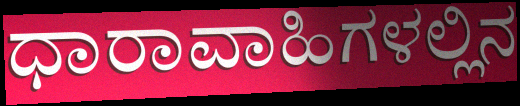
ಧಾರಾವಾಹಿಗಳಲ್ಲಿನ